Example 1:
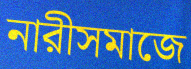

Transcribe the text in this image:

নারীসমাজে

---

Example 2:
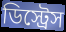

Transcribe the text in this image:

ডিস্ট্রেস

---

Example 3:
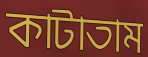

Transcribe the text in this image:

কাটাতাম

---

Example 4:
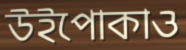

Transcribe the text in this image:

উইপোকাও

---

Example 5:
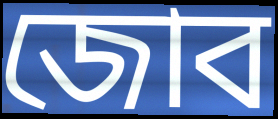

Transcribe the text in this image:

জোব